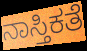
ನಾಸ್ತಿಕತೆ